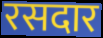
रसदार